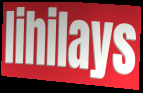
lihilays